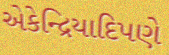
એકેન્દ્રિયાદિપણે